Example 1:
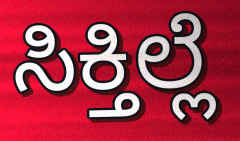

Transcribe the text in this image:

ಸಿಕ್ತಿಲ್ಲೆ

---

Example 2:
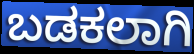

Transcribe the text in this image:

ಬಡಕಲಾಗಿ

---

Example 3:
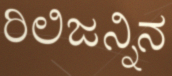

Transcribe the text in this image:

ರಿಲಿಜನ್ನಿನ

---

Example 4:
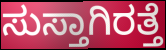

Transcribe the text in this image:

ಸುಸ್ತಾಗಿರತ್ತೆ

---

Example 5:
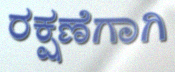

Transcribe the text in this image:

ರಕ್ಷಣೆಗಾಗಿ